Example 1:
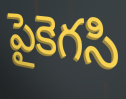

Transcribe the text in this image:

పైకెగసి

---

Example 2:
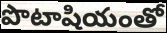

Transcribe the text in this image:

పొటాషియంతో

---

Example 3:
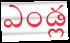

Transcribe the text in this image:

ఎండ్ల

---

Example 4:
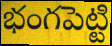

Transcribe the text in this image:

భంగపెట్టి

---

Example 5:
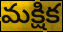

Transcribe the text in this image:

మక్షిక